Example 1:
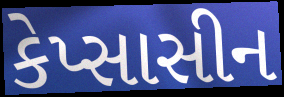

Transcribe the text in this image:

કેપ્સાસીન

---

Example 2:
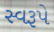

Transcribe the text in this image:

સ્વરૂપે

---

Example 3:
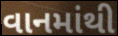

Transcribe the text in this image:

વાનમાંથી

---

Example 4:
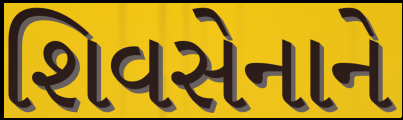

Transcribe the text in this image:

શિવસેનાને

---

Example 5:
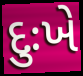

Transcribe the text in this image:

દુઃખે